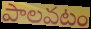
పాలవటం